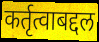
कर्तृत्वाबद्दल